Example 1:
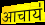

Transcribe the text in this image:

आचाय॑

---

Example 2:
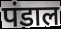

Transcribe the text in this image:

पंडाल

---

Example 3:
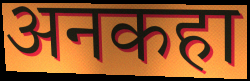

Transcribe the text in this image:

अनकहा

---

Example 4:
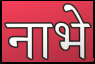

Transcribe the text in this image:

नाभे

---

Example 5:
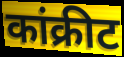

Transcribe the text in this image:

कांक्रीट